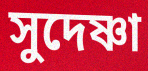
সুদেষ্ণা